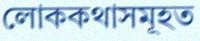
লোককথাসমূহত